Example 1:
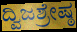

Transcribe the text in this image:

ದ್ವಿಜಶ್ರೇಷ್ಠ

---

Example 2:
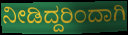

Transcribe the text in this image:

ನೀಡಿದ್ದರಿಂದಾಗಿ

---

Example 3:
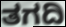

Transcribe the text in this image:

ತಗದಿ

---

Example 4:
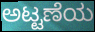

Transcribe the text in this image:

ಅಟ್ಟಣೆಯ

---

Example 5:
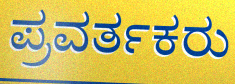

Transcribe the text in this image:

ಪ್ರವರ್ತಕರು